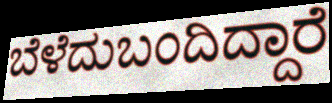
ಬೆಳೆದುಬಂದಿದ್ದಾರೆ